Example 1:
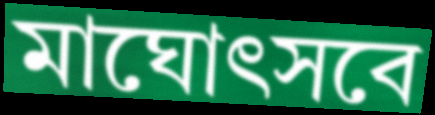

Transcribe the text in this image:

মাঘোৎসবে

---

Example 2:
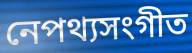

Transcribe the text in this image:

নেপথ্যসংগীত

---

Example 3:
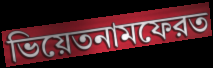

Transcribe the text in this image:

ভিয়েতনামফেরত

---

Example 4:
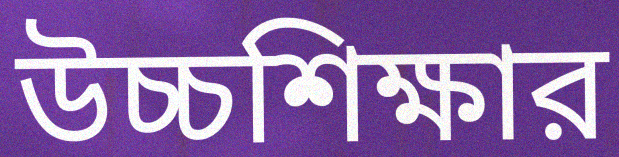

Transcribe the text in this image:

উচ্চশিক্ষার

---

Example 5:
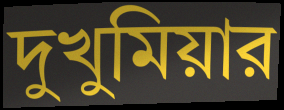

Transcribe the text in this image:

দুখুমিয়ার